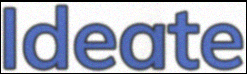
Ideate